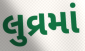
લુવ્રમાં